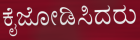
ಕೈಜೋಡಿಸಿದರು